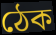
ঠেক